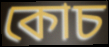
কোচ